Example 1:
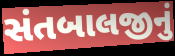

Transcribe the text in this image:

સંતબાલજીનું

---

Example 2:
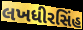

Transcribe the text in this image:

લખધીરસિંહ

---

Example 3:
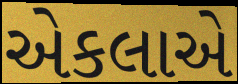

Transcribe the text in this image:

એકલાએ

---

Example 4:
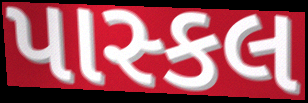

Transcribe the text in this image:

પાસ્કલ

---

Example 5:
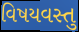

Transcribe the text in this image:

વિષયવસ્તુ